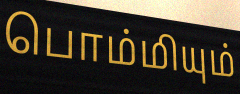
பொம்மியும்